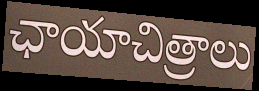
ఛాయాచిత్రాలు